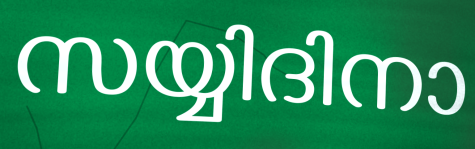
സയ്യിദിനാ